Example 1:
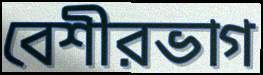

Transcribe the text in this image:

বেশীরভাগ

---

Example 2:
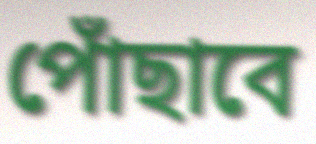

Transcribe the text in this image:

পোঁছাবে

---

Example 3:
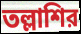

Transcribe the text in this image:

তল্লাশির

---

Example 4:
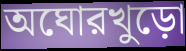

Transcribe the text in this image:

অঘোরখুড়ো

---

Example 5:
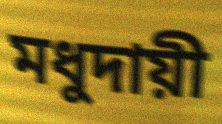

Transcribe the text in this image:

মধুদায়ী